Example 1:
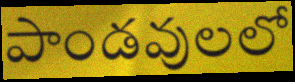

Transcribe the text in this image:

పాండవులలో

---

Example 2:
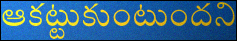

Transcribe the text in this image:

ఆకట్టుకుంటుందని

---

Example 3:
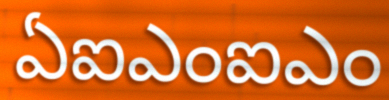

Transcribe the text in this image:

ఏఐఎంఐఎం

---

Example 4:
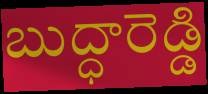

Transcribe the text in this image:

బుద్ధారెడ్డి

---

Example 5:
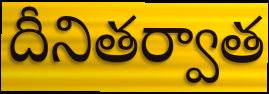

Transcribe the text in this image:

దీనితర్వాత